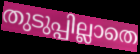
തുടുപ്പില്ലാതെ